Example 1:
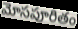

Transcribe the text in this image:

మోసపూరితం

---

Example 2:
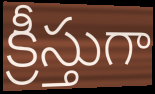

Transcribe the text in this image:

క్రీస్తుగా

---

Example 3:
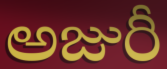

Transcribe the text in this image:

అజురీ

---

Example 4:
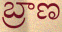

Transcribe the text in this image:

బ్రాణ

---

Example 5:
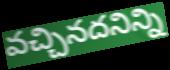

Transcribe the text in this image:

వచ్చినదనిన్ని